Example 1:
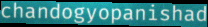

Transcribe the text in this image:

chandogyopanishad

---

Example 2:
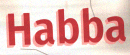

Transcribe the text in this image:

Habba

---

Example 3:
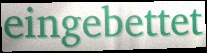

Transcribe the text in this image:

eingebettet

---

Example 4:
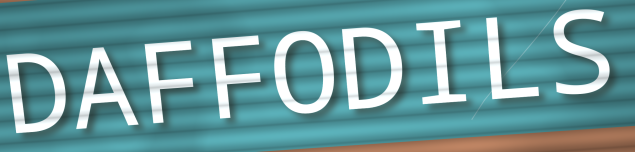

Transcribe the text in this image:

DAFFODILS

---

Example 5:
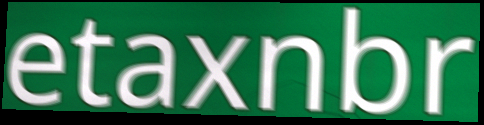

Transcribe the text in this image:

etaxnbr